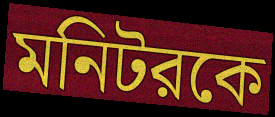
মনিটরকে